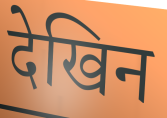
देखिन